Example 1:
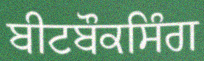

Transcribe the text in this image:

ਬੀਟਬੌਕਸਿੰਗ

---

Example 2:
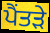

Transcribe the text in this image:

ਪੈਂਤੜੇ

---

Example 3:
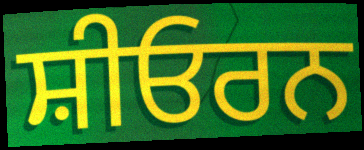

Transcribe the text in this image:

ਸ਼ੀਓਰਨ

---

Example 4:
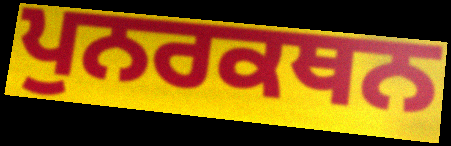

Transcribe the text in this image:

ਪੁਨਰਕਥਨ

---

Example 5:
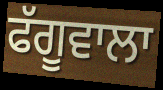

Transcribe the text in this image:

ਫੱਗੂਵਾਲਾ